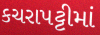
કચરાપટ્ટીમાં